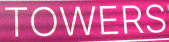
TOWERS